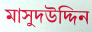
মাসুদউদ্দিন